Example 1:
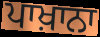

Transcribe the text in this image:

ਪਾਖ਼ਾਨਾ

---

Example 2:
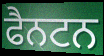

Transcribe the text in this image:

ਫੈਨਟਨ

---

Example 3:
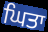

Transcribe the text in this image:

ਘਿਤਾ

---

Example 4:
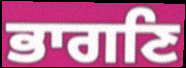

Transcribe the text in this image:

ਭਾਗਣਿ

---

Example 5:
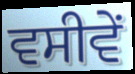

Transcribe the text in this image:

ਵਸੀਵੇਂ